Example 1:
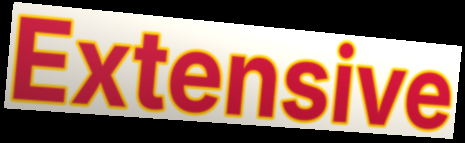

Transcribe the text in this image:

Extensive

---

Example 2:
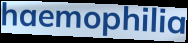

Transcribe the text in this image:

haemophilia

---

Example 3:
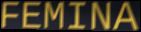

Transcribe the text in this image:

FEMINA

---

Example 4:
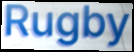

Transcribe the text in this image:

Rugby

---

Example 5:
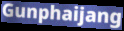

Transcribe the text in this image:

Gunphaijang